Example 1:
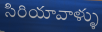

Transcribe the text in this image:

సిరియావాళ్ళు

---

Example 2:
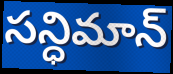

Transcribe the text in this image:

సన్ధిమాన్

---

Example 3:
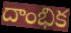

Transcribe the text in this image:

దాంభిక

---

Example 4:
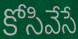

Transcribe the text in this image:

కోసివేసే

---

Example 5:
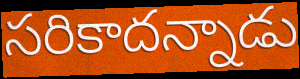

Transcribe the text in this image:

సరికాదన్నాడు